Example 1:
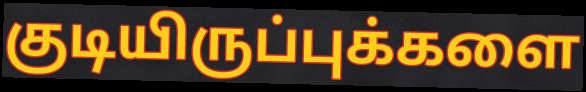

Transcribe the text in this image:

குடியிருப்புக்களை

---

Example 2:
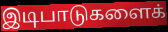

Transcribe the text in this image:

இடிபாடுகளைக்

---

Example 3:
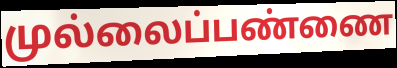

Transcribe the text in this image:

முல்லைப்பண்ணை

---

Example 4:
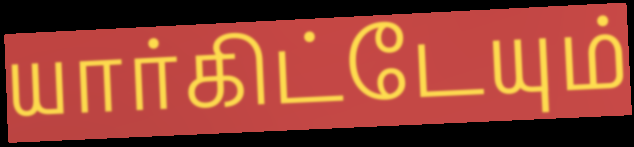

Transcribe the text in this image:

யார்கிட்டேயும்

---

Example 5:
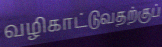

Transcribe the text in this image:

வழிகாட்டுவதற்குப்